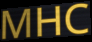
MHC